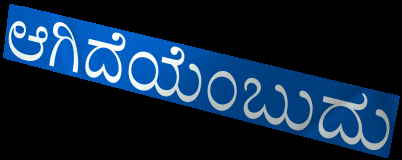
ಆಗಿದೆಯೆಂಬುದು